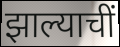
झाल्याचीं